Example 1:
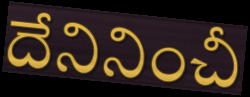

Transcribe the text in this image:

దేనినించీ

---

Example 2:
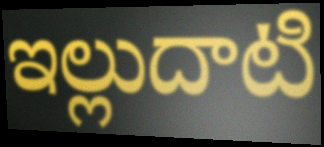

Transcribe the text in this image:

ఇల్లుదాటి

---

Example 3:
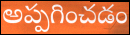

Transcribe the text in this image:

అప్పగించడం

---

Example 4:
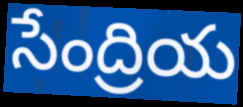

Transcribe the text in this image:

సేంద్రియ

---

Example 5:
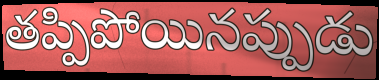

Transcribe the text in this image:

తప్పిపోయినప్పుడు